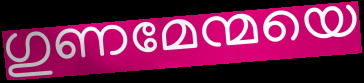
ഗുണമേന്മയെ